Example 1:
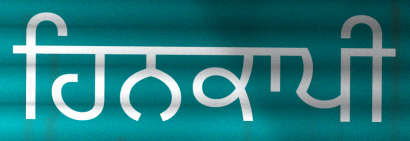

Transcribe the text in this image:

ਹਿਨਕਾਪੀ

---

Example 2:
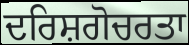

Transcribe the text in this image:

ਦਰਿਸ਼ਗੋਚਰਤਾ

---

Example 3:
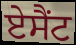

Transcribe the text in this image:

ਏਸੈਂਟ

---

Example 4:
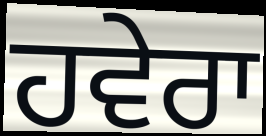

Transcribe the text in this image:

ਹਵੇਰਾ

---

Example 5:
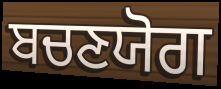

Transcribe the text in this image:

ਬਚਣਯੋਗ